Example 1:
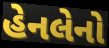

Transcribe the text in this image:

હેનલેનો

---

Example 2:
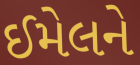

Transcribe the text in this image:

ઈમેલને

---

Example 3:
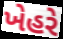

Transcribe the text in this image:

ખેહરે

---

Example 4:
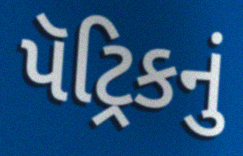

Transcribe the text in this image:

પૅટ્રિકનું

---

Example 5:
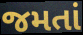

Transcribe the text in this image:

જમતાં